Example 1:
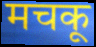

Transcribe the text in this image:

मचकू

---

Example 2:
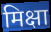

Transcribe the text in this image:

मिक्षा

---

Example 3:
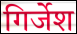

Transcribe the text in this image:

गिर्जेश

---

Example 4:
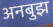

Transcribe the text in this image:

अनबुझ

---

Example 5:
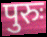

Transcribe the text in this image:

पुरुः